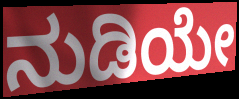
ನುಡಿಯೇ